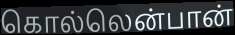
கொல்லென்பான்